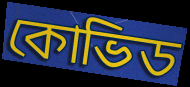
কোভিড